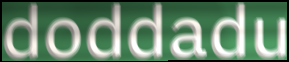
doddadu